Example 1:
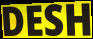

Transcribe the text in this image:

DESH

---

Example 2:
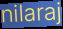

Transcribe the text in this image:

nilaraj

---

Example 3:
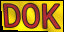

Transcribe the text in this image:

DOK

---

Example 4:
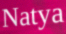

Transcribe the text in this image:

Natya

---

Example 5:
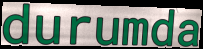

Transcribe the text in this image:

durumda